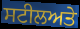
ਸਟੀਲਅਤੇ